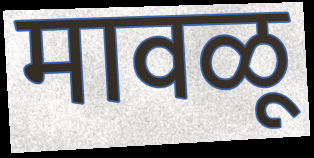
मावळू